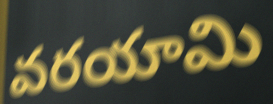
వరయామి